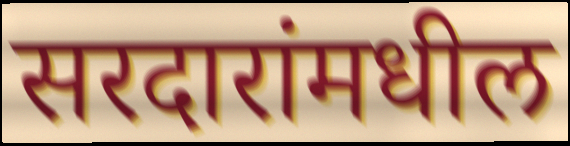
सरदारांमधील